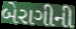
બેરાગીની